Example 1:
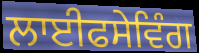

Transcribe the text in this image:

ਲਾਈਫਸੇਵਿੰਗ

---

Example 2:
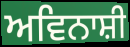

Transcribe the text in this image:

ਅਵਿਨਾਸ਼ੀ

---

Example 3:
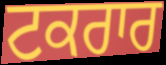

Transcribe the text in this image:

ਟਕਰਾਰ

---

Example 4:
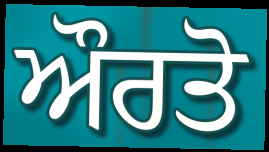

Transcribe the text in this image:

ਔਰਤੋ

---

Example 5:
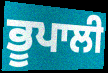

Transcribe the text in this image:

ਭੂਪਾਲੀ